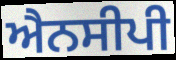
ਐਨਸੀਪੀ